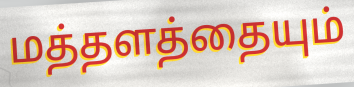
மத்தளத்தையும்